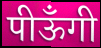
पीऊँगी